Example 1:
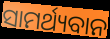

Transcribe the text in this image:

ସାମର୍ଥ୍ୟବାନ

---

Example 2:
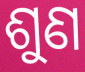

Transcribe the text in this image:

ଶୁଣ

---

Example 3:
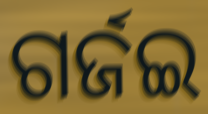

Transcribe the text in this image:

ଗର୍ଜଇ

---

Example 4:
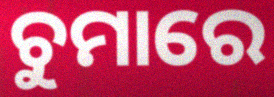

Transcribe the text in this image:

ଚୁମାରେ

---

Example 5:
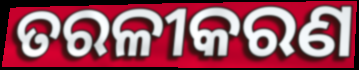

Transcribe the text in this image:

ତରଳୀକରଣ